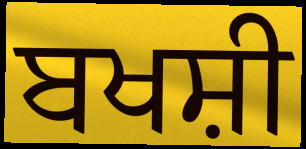
ਬਖਸ਼ੀ